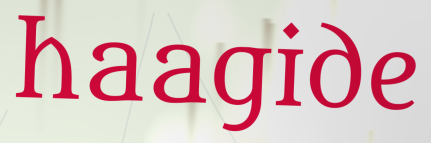
haagide